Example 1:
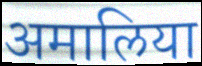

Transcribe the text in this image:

अमालिया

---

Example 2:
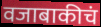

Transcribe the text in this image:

वजाबाकीचं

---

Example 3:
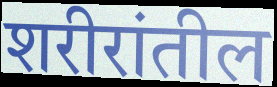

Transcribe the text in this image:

शरीरांतील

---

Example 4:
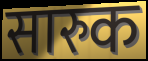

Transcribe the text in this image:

सारुक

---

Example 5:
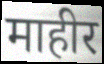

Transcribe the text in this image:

माहीर